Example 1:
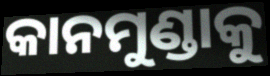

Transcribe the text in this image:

କାନମୁଣ୍ଡାକୁ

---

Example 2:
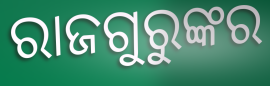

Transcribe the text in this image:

ରାଜଗୁରୁଙ୍କର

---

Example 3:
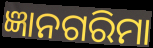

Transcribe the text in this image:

ଜ୍ଞାନଗରିମା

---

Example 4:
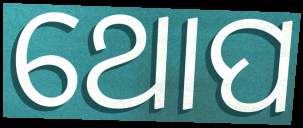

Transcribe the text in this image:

ଥୋପ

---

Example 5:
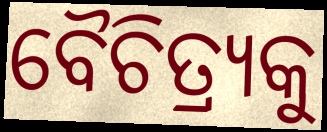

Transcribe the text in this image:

ବୈଚିତ୍ର୍ୟକୁ